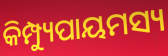
କିମ୍ପ୍ୟୁପାୟମସ୍ୟ